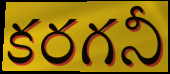
కరగనీ